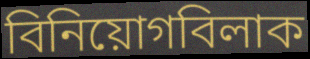
বিনিয়োগবিলাক